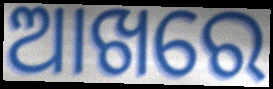
ଆଖରେ